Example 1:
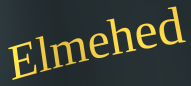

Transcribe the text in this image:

Elmehed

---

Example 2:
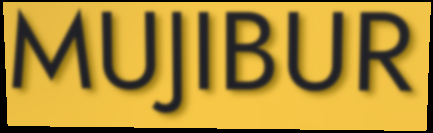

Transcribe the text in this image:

MUJIBUR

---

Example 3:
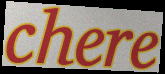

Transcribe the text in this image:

chere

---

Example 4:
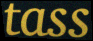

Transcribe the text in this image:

tass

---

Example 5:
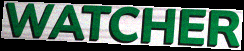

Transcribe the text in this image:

WATCHER